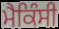
ਮੈਕਿੰਸੀ